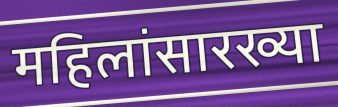
महिलांसारख्या